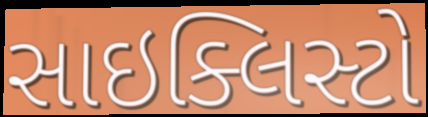
સાઇક્લિસ્ટો